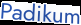
Padikum